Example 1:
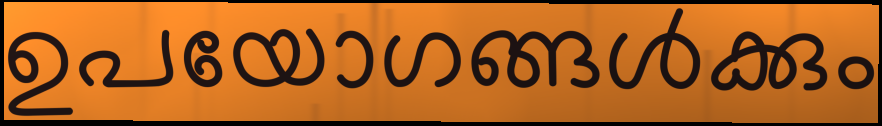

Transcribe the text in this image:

ഉപയോഗങ്ങൾക്കും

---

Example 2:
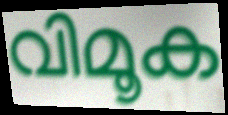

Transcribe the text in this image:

വിമൂക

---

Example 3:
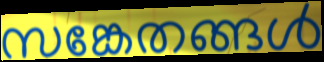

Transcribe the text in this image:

സങ്കേതങ്ങൾ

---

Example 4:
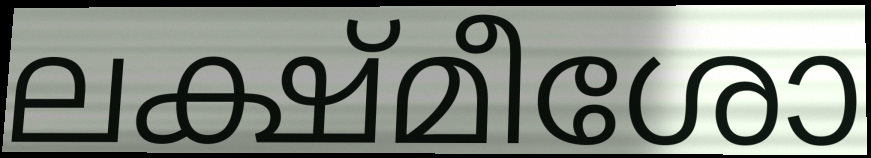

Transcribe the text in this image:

ലക്ഷ്മീശോ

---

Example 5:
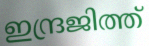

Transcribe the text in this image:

ഇന്ദ്രജിത്ത്